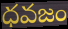
ధవజం